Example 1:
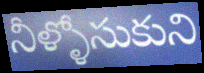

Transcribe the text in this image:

నీళ్ళోసుకుని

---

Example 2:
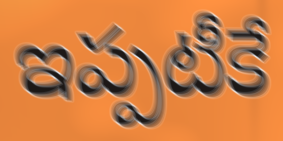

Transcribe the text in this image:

ఇప్పటీకే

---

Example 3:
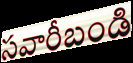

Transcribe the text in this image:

సవారీబండి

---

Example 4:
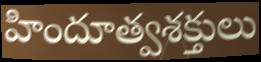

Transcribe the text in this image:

హిందూత్వశక్తులు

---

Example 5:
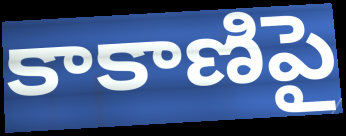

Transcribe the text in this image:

కాకాణిపై